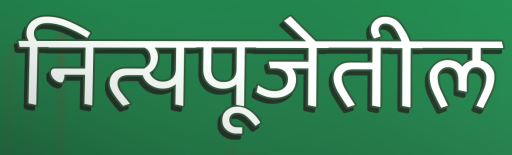
नित्यपूजेतील